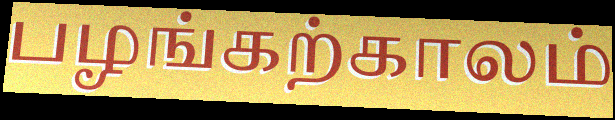
பழங்கற்காலம்